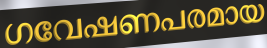
ഗവേഷണപരമായ